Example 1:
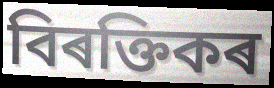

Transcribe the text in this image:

বিৰক্তিকৰ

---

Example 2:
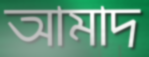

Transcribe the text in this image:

আমাদ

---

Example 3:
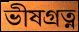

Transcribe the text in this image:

ভীষগ্ৰত্ন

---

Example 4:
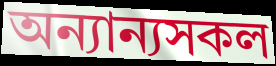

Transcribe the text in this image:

অন্যান্যসকল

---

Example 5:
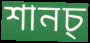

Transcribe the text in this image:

শানচ্